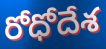
రోధోదేశ